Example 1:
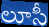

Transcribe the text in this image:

లూసీ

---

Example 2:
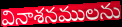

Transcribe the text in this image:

వినాశనములను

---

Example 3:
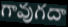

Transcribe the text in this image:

గావుగదా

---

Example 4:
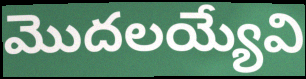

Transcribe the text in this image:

మొదలయ్యేవి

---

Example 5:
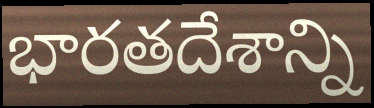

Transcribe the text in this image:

భారతదేశాన్ని